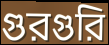
গুরগুরি